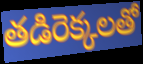
తడిరెక్కలతో